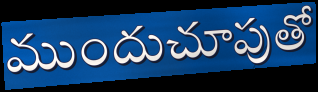
ముందుచూపుతో